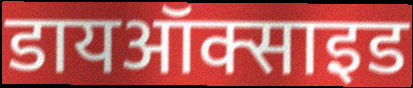
डायऑक्साइड